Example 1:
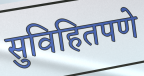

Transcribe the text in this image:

सुविहितपणे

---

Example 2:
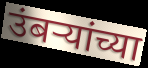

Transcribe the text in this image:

उंबऱ्यांच्या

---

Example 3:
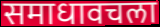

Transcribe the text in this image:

समाधावचला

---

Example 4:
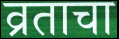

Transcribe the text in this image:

व्रताचा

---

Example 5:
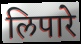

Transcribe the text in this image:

लिपारे